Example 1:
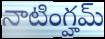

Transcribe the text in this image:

నాటింగ్హమ్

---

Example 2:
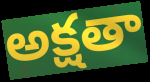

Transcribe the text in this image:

అక్షతా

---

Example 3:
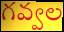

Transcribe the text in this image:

గవ్వల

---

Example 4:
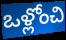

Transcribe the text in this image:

ఒళ్లోంచి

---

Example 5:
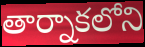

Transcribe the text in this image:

తార్నాకలోని